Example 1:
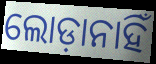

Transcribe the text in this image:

ଲୋଡ଼ାନାହିଁ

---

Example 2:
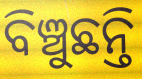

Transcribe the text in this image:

ବିଞ୍ଚୁଛନ୍ତି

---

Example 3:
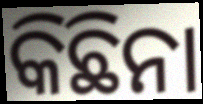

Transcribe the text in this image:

କିଛିନା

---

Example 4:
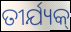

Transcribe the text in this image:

ତୀର୍ଯ୍ୟକ୍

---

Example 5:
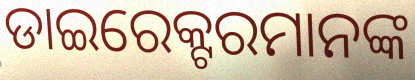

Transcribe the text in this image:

ଡାଇରେକ୍ଟରମାନଙ୍କ